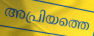
അപ്രിയത്തെ